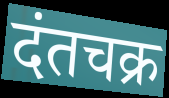
दंतचक्र